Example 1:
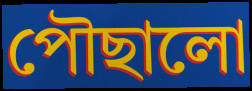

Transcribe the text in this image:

পৌছালো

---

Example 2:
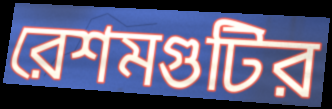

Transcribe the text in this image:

রেশমগুটির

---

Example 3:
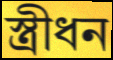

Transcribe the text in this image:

স্ত্রীধন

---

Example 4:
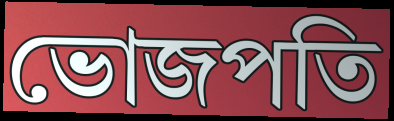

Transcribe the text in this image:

ভোজপতি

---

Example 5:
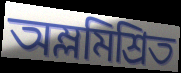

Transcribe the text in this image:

অম্লমিশ্রিত